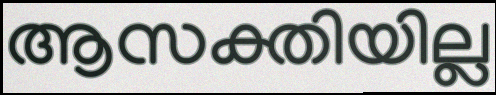
ആസക്തിയില്ല